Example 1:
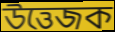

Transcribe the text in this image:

উত্তেজক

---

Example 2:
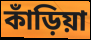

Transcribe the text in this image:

কাঁড়িয়া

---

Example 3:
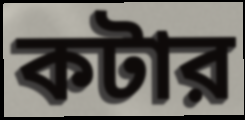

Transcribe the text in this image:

কটার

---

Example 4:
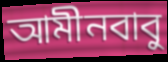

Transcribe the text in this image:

আমীনবাবু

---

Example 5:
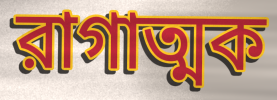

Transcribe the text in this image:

রাগাত্মক